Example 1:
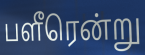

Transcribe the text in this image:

பளீரென்று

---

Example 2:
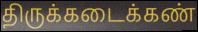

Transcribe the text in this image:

திருக்கடைக்கண்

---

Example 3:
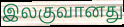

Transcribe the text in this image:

இலகுவானது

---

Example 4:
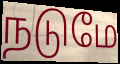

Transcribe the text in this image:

நடுமே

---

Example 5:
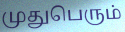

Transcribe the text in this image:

முதுபெரும்